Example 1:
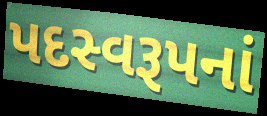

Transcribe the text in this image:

પદસ્વરૂપનાં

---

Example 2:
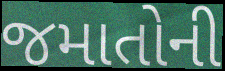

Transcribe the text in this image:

જમાતોની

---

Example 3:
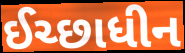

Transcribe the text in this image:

ઈચ્છાધીન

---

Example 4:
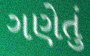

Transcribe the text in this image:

ગણેતું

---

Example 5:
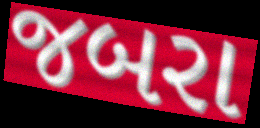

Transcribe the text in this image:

જબરા